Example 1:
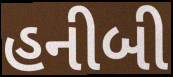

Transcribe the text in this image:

હનીબી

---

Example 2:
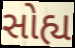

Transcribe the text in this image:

સોહ્ય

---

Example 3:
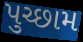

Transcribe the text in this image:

પુચ્છામ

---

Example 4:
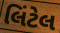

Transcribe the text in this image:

લિંટેલ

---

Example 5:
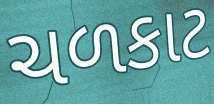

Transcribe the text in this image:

ચળકાટ